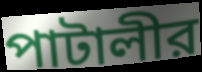
পাটালীর